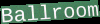
Ballroom